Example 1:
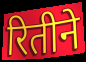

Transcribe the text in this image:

रितीने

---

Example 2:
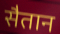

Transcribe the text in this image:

सैतान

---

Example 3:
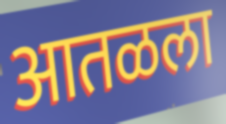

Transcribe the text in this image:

आतळला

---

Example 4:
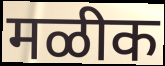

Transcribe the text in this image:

मळीक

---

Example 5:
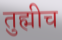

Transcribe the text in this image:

तुह्मीच